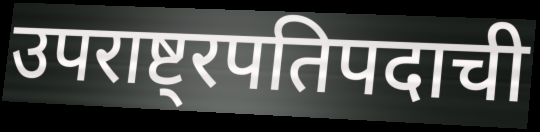
उपराष्ट्रपतिपदाची